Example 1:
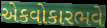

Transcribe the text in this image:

એકવોકારભવે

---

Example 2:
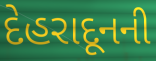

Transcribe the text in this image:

દેહરાદૂનની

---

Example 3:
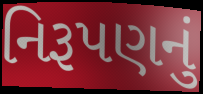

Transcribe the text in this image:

નિરૂપણનું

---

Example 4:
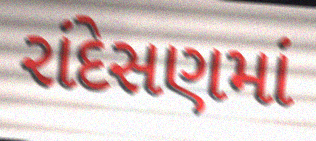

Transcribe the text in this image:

રાંદેસણમાં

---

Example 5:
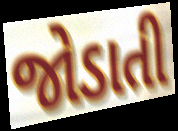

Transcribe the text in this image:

જોડાતી